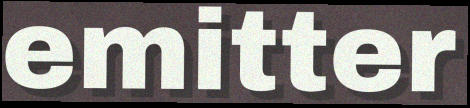
emitter